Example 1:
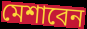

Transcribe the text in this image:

মেশাবেন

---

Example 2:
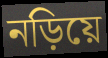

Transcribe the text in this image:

নড়িয়ে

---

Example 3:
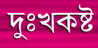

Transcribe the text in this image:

দুঃখকষ্ট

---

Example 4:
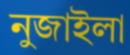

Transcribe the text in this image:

নুজাইলা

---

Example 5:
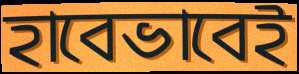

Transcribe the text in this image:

হাবেভাবেই